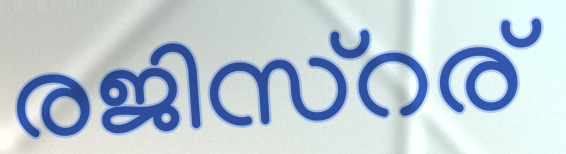
രജിസ്റര്